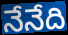
నేనేది